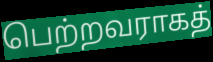
பெற்றவராகத்